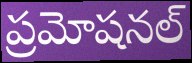
ప్రమోషనల్